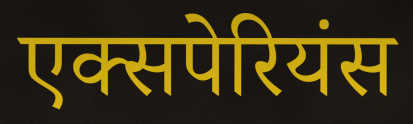
एक्सपेरियंस